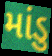
માંડુ